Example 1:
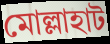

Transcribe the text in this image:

মোল্লাহাট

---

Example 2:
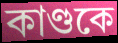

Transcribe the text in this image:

কাণ্ডকে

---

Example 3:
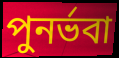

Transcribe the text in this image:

পুনর্ভবা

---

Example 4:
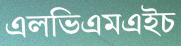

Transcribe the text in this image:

এলভিএমএইচ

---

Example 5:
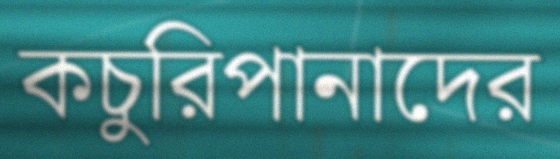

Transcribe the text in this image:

কচুরিপানাদের